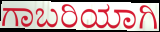
ಗಾಬರಿಯಾಗಿ